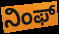
ನಿಂಫ್